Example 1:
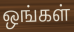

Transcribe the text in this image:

ஒங்கள்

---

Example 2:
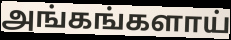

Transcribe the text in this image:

அங்கங்களாய்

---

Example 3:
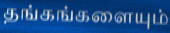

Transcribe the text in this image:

தங்கங்களையும்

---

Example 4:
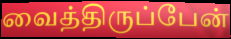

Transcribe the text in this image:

வைத்திருப்பேன்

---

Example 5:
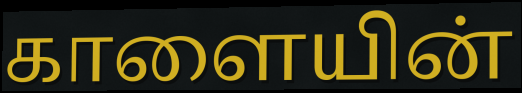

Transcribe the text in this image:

காளையின்